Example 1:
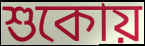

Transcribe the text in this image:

শুকোয়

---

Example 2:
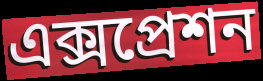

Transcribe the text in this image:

এক্সপ্রেশন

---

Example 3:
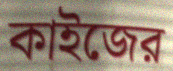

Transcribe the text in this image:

কাইজের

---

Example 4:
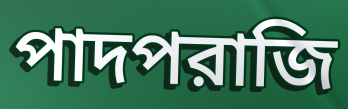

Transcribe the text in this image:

পাদপরাজি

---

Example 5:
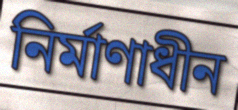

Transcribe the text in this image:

নির্মাণাধীন